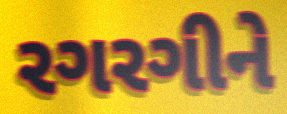
રગરગીને